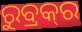
ରୁବ୍ରକ୍‍ର